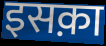
इसक़ा